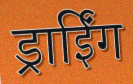
ड्राईिंग